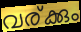
വര്ക്കും